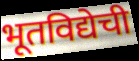
भूतविद्येची